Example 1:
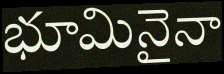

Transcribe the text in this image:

భూమినైనా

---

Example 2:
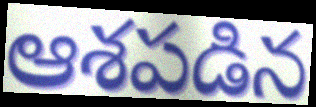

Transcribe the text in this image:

ఆశపడిన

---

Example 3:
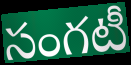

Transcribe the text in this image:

సంగటీ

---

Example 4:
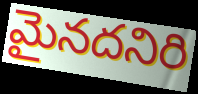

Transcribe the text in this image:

మైనదనిరి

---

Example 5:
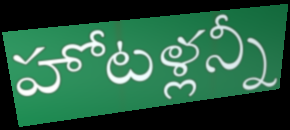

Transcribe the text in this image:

హోటళ్లన్నీ